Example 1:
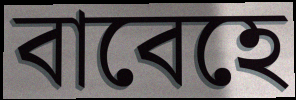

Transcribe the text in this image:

বাবেহে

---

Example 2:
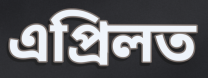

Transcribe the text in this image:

এপ্ৰিলত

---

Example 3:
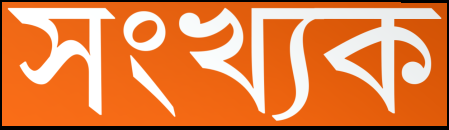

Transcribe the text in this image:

সংখ্যক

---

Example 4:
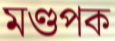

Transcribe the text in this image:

মণ্ডপক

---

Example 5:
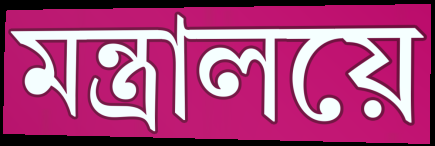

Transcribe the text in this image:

মন্ত্ৰালয়ে